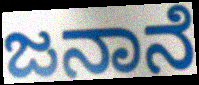
ಜನಾನೆ